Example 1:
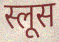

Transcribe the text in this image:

स्लूस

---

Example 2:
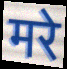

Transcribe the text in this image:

मरे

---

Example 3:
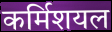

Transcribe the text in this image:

कर्मिशयल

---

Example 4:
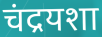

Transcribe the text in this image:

चंद्रयशा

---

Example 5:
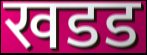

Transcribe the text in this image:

खडड